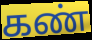
கண்